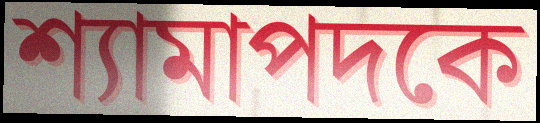
শ্যামাপদকে